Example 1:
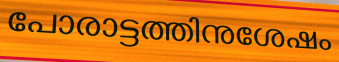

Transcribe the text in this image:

പോരാട്ടത്തിനുശേഷം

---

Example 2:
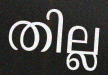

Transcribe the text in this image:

തില്ല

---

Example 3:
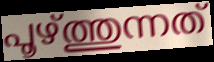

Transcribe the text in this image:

പൂഴ്ത്തുന്നത്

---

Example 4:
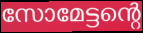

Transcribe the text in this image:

സോമേട്ടന്റെ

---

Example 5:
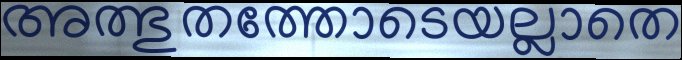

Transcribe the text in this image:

അത്ഭുതത്തോടെയല്ലാതെ